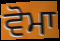
ਵੋਮਾ